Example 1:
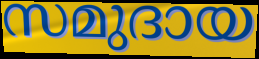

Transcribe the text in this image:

സമുദായ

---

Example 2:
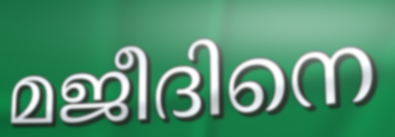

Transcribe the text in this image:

മജീദിനെ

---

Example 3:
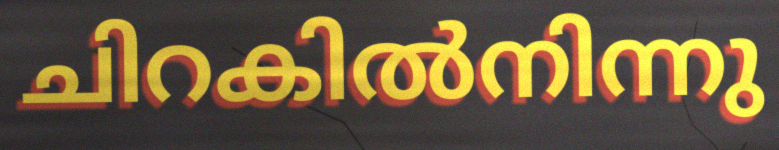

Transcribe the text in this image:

ചിറകിൽനിന്നു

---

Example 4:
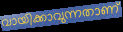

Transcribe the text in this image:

വായിക്കാവുന്നതാണ്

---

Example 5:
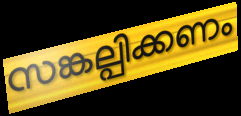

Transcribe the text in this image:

സങ്കല്പിക്കണം